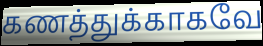
கணத்துக்காகவே